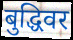
बुद्धिवर